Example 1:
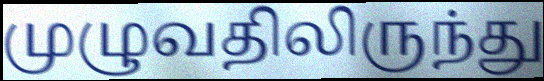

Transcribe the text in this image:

முழுவதிலிருந்து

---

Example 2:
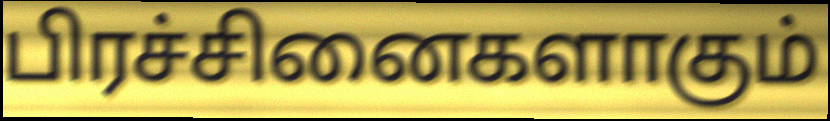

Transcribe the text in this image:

பிரச்சினைகளாகும்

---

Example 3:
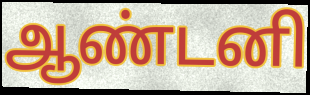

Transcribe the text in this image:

ஆண்டனி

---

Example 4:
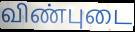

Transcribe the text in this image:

விண்புடை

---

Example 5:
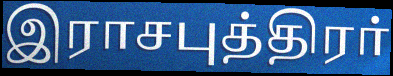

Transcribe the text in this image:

இராசபுத்திரர்